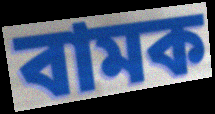
বামক